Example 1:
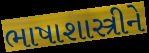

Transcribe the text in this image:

ભાષાશાસ્ત્રીને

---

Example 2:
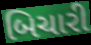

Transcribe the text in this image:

બિચારી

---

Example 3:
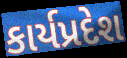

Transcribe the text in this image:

કાર્યપ્રદેશ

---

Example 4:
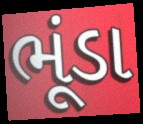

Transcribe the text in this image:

ભૂંડા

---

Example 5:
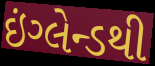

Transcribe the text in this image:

ઇંગ્લેન્ડથી